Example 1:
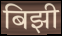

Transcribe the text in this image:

बिझी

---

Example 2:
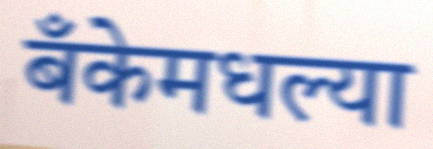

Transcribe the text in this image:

बँकेमधल्या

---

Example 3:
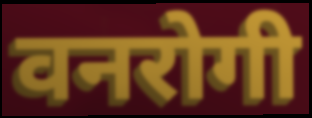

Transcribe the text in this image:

वनरोगी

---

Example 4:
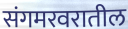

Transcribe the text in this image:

संगमरवरातील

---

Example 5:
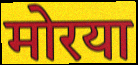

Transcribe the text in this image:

मोरया